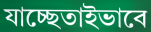
যাচ্ছেতাইভাবে